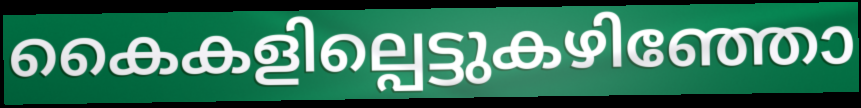
കൈകളില്പെട്ടുകഴിഞ്ഞോ